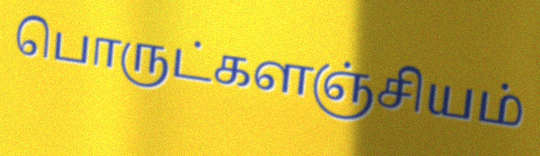
பொருட்களஞ்சியம்